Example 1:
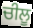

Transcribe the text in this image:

ਚੀਲੂ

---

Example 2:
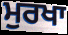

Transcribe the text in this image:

ਮੁਰਖਾ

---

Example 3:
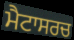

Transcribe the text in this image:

ਮੈਟਾਸਰਚ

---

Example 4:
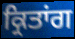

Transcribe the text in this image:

ਕ੍ਰਿਤਾਂਗ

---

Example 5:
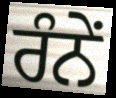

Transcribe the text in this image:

ਰੰਨੇਂ